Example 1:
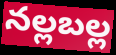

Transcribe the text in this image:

నల్లబల్ల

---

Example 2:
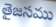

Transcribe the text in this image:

తైజసము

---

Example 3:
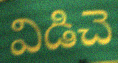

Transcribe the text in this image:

విడిచె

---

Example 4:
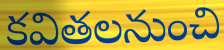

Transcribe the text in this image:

కవితలనుంచి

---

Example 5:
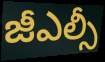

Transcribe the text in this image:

జీఎల్సీ